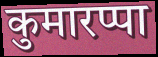
कुमारप्पा